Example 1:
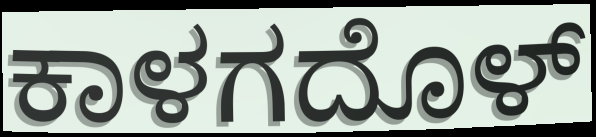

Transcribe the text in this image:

ಕಾಳಗದೊಳ್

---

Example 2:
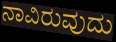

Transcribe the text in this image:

ನಾವಿರುವುದು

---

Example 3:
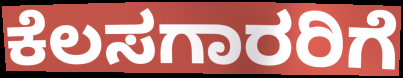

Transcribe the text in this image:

ಕೆಲಸಗಾರರಿಗೆ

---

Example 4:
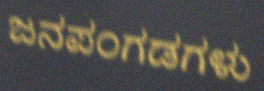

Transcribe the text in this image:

ಜನಪಂಗಡಗಳು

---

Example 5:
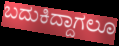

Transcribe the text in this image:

ಬದುಕಿದ್ದಾಗಲೂ